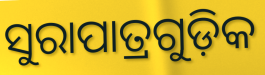
ସୁରାପାତ୍ରଗୁଡ଼ିକ